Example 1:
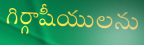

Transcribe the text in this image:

గిర్గాషీయులను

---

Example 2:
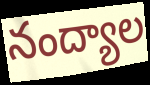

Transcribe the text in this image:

నంద్యాల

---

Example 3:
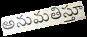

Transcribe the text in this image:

అనుమతిస్తూ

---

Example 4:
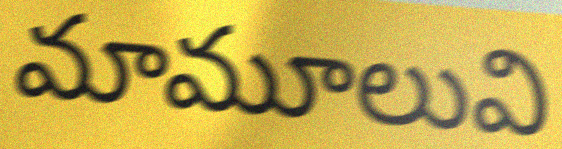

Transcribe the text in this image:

మామూలువి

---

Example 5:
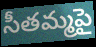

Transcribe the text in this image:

సీతమ్మపై